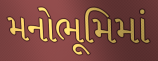
મનોભૂમિમાં